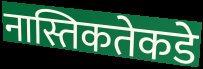
नास्तिकतेकडे